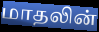
மாதலின்